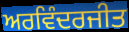
ਅਰਵਿੰਦਰਜੀਤ